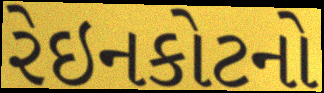
રેઇનકોટનો